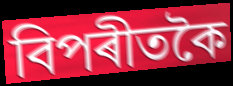
বিপৰীতকৈ